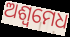
ଅଶ୍ଵମେଧ